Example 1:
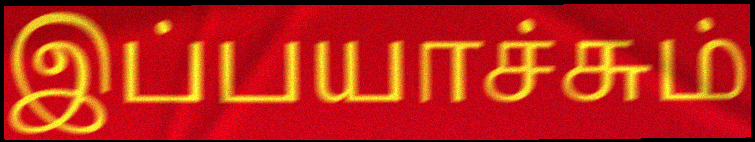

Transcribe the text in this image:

இப்பயாச்சும்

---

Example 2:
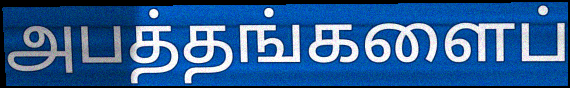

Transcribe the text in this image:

அபத்தங்களைப்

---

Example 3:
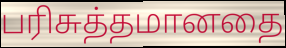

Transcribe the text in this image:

பரிசுத்தமானதை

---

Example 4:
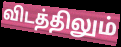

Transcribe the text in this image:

விடத்திலும்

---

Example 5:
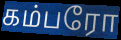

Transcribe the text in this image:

கம்பரோ